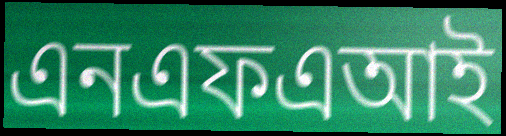
এনএফএআই